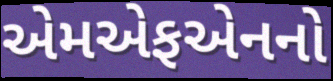
એમએફએનનો